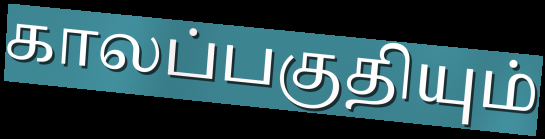
காலப்பகுதியும்